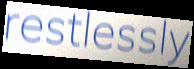
restlessly